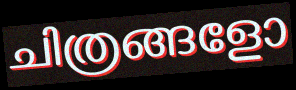
ചിത്രങ്ങളോ